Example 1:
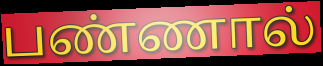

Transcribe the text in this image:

பண்ணால்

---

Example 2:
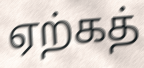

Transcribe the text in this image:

ஏற்கத்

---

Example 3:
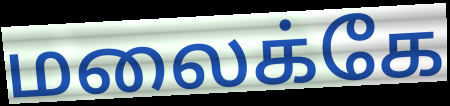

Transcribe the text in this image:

மலைக்கே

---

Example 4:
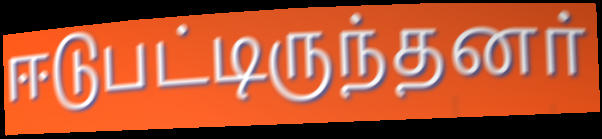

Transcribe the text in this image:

ஈடுபட்டிருந்தனர்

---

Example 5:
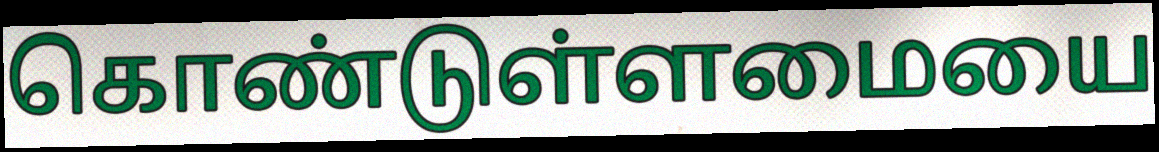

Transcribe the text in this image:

கொண்டுள்ளமையை